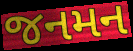
જનમન